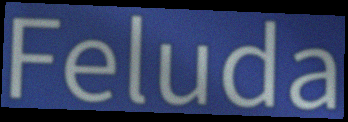
Feluda